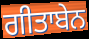
ਗੀਤਾਬੇਨ